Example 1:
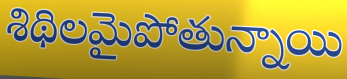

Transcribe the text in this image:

శిథిలమైపోతున్నాయి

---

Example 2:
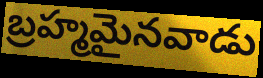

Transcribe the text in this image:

బ్రహ్మమైనవాడు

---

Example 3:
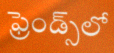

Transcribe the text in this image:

ఫ్రెండ్స్‌లో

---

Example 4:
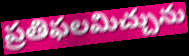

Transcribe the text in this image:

ప్రతిఫలమిచ్చును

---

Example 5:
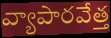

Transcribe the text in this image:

వ్యాపారవేత్త